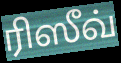
ரிஸீவ்